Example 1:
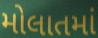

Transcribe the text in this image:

મોલાતમાં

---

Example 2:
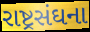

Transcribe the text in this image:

રાષ્ટ્રસંઘના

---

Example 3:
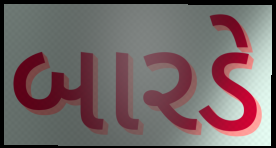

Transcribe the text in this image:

બારડે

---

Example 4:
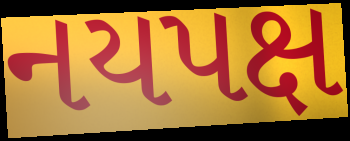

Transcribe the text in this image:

નયપક્ષ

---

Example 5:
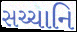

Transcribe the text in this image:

સચ્ચાનિ